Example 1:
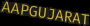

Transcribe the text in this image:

AAPGUJARAT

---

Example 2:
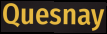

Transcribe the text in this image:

Quesnay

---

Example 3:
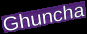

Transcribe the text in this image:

Ghuncha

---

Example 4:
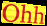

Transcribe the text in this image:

Ohh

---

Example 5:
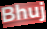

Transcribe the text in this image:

Bhuj